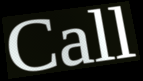
Call